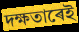
দক্ষতাৰেই